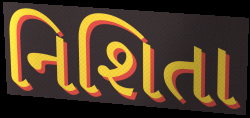
નિશિતા